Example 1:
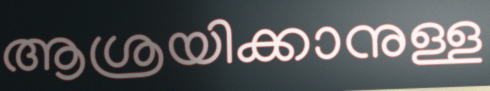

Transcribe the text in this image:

ആശ്രയിക്കാനുള്ള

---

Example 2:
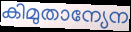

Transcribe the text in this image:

കിമുതാന്യേന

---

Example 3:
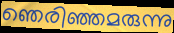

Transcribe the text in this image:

ഞെരിഞ്ഞമരുന്നു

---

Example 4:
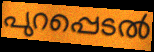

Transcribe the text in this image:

പുറപ്പെടൽ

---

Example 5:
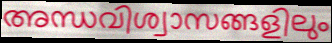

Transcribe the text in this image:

അന്ധവിശ്വാസങ്ങളിലും